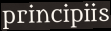
principiis